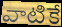
వాటికే